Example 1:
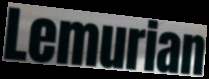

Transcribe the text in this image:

Lemurian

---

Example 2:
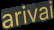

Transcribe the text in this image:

arivai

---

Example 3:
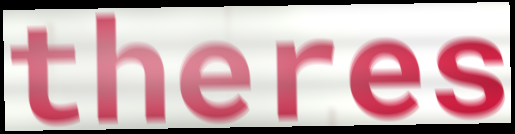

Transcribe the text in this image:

theres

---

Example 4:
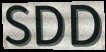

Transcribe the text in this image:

SDD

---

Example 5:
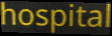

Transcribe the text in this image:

hospital